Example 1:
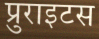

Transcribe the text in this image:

प्रुराइटस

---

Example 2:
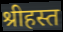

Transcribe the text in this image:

श्रीहस्त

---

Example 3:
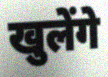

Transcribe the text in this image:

खुलेंगे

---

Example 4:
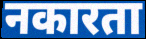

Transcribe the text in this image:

नकारता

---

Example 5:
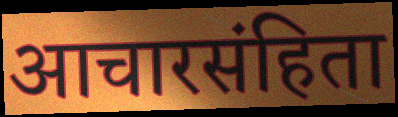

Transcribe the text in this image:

आचारसंहिता